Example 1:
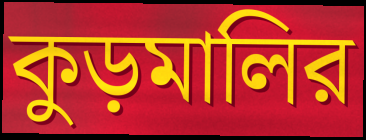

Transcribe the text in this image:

কুড়মালির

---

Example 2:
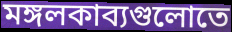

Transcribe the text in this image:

মঙ্গলকাব্যগুলোতে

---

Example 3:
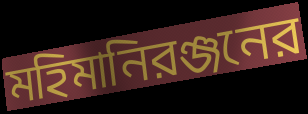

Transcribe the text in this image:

মহিমানিরঞ্জনের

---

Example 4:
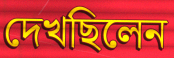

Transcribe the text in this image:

দেখছিলেন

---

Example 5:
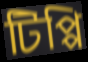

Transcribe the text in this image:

টিপ্পি